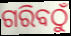
ଗରିବଠୁଁ